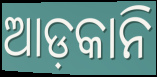
ଆଡ଼କାନି